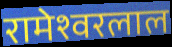
रामेश्वरलाल